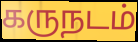
கருநடம்